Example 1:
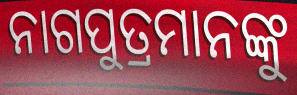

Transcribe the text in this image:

ନାଗପୁତ୍ରମାନଙ୍କୁ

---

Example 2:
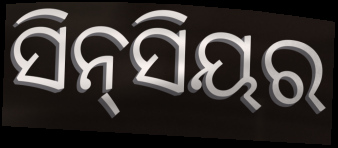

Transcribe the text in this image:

ସିନ୍‌ସିୟର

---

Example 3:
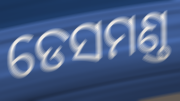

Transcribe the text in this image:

ଡେସମଣ୍ଡ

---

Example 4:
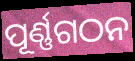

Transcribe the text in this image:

ପୂର୍ଣ୍ଣଗଠନ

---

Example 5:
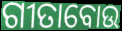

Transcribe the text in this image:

ଗୀତାବୋଉ